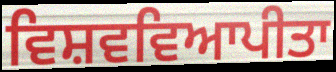
ਵਿਸ਼ਵਵਿਆਪੀਤਾ